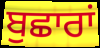
ਬੁਛਾਰਾਂ